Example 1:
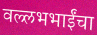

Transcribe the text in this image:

वल्लभभाईंचा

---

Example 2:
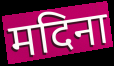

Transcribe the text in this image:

मदिना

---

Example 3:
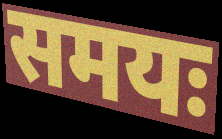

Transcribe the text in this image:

समयः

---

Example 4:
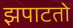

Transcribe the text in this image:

झपाटतो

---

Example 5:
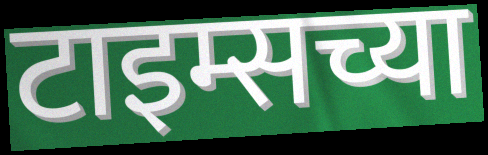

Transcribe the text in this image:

टाइम्सच्या